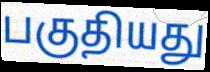
பகுதியது